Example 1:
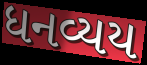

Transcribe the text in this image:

ધનવ્યય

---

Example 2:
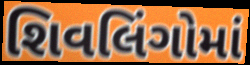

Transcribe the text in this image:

શિવલિંગોમાં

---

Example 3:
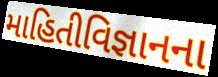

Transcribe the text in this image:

માહિતીવિજ્ઞાનના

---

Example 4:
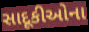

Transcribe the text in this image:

સાદૂકીઓના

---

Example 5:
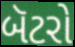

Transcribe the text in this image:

બૅટરો